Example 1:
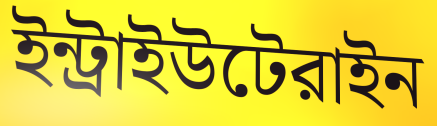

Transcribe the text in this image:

ইন্ট্রাইউটেরাইন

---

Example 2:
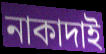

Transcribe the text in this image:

নাকাদাই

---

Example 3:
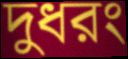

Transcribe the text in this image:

দুধরং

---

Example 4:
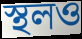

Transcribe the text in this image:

স্থলও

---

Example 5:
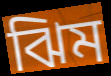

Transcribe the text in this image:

ঝিম